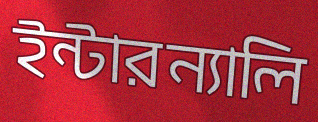
ইন্টারন্যালি